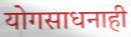
योगसाधनाही